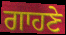
ਗਾਹਣੇ